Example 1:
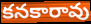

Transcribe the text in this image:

కనకారావు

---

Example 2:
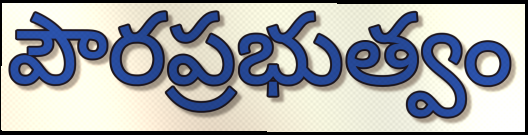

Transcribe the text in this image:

పౌరప్రభుత్వం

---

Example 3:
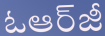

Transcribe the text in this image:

ఓఆర్‌జీ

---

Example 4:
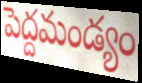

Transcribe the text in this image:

పెద్దమండ్యం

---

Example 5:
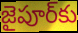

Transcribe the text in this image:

జైపూర్‌కు